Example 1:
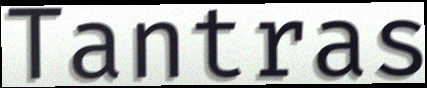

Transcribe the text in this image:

Tantras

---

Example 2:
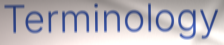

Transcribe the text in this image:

Terminology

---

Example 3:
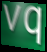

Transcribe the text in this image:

vq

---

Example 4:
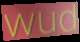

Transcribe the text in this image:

wud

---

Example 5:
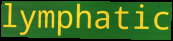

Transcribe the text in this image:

lymphatic